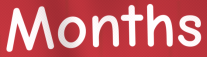
Months